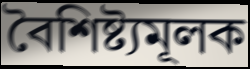
বৈশিষ্ট্যমূলক